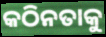
କଠିନତାକୁ